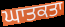
ਘਾਤਕਤਾ